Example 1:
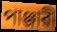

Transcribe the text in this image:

পাঞ্জাৱী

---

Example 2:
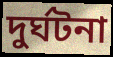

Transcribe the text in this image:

দুৰ্ঘটনা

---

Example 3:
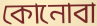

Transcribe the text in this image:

কোনোবা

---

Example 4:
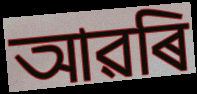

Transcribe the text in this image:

আৱৰি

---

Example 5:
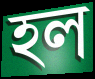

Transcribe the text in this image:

হল